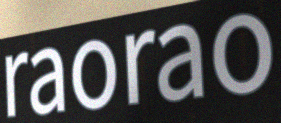
raorao